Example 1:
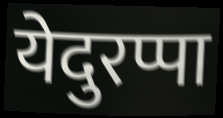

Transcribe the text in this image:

येदुरप्पा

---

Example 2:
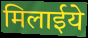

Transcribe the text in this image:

मिलाईये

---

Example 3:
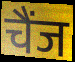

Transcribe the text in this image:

चैंज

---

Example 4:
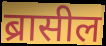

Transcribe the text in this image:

ब्रासील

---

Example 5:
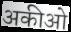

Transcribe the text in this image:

अकीओ